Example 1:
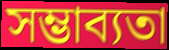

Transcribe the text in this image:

সম্ভাব্যতা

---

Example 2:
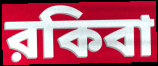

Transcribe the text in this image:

রকিবা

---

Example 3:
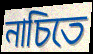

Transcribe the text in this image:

নাচিতে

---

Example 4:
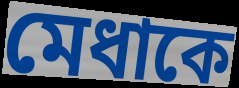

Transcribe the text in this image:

মেধাকে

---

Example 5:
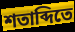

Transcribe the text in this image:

শতাব্দিতে